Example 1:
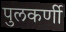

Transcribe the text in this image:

पुलकर्णी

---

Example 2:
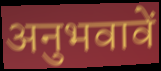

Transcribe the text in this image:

अनुभवावें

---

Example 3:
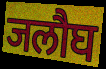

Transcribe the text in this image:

जलौघ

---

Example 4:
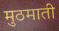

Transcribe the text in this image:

मुठमाती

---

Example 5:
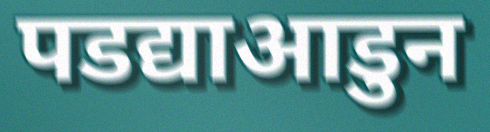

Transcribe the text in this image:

पडद्याआडुन